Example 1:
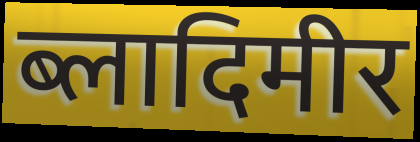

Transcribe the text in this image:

ब्लादिमीर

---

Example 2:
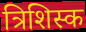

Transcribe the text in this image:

त्रिशिस्क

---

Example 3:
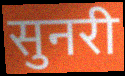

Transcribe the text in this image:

सुनरी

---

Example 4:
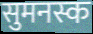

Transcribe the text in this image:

सुमनस्क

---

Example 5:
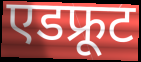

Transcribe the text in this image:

एडफ्रूट